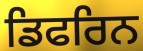
ਡਿਫਰਿਨ